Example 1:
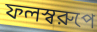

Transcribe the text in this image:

ফলস্বৰুপে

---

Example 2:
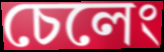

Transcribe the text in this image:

চেলেং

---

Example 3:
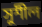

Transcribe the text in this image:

সুশীল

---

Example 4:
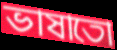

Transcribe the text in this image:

ভাষাতো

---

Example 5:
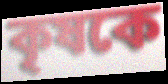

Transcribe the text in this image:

কৃষকে